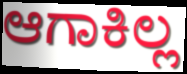
ಆಗಾಕಿಲ್ಲ